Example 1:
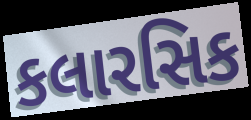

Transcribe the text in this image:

કલારસિક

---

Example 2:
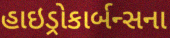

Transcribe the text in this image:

હાઇડ્રોકાર્બન્સના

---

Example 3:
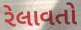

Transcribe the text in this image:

રેલાવતો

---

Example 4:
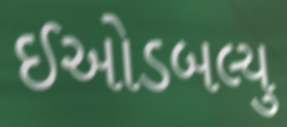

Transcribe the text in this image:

ઈઓડબલ્યુ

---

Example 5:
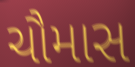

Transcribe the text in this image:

ચૌમાસ